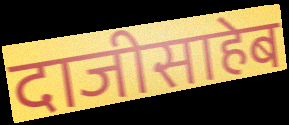
दाजीसाहेब